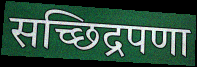
सच्छिद्रपणा